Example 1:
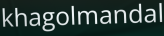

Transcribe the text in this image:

khagolmandal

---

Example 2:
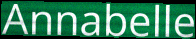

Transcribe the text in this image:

Annabelle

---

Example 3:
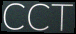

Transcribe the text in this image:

CCT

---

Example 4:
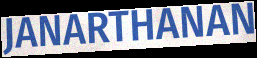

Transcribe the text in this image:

JANARTHANAN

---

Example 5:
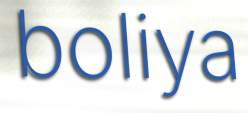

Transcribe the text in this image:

boliya